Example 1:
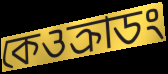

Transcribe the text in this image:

কেওক্রাডং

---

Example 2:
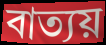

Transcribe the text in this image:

বাত্যয়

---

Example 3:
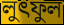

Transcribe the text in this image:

লুৎফুল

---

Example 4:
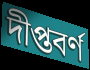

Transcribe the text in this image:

দীপ্তবর্ণ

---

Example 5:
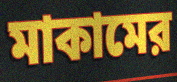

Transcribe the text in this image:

মাকামের